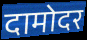
दामोदर